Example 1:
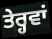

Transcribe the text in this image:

ਤੇਰ੍ਹਵਾਂ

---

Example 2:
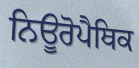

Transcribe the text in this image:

ਨਿਊਰੋਪੈਥਿਕ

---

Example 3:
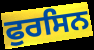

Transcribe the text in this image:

ਫੁਰਸਿਨ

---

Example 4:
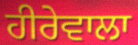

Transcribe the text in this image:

ਹੀਰੇਵਾਲਾ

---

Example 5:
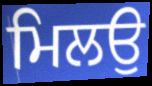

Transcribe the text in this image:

ਮਿਲਉ